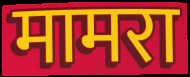
मामरा